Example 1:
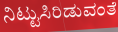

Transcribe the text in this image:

ನಿಟ್ಟುಸಿರಿಡುವಂತೆ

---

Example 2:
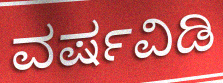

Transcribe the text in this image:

ವರ್ಷವಿಡಿ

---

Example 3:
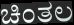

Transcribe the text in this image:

ಚಿಂತಲ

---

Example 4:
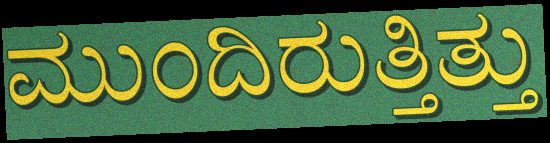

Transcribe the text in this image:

ಮುಂದಿರುತ್ತಿತ್ತು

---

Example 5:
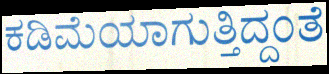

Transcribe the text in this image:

ಕಡಿಮೆಯಾಗುತ್ತಿದ್ದಂತೆ